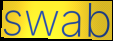
swab